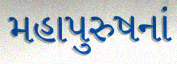
મહાપુરુષનાં